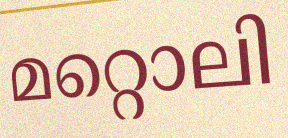
മറ്റൊലി